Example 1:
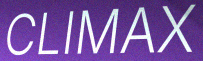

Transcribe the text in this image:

CLIMAX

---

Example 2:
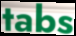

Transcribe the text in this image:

tabs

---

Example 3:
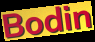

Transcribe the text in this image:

Bodin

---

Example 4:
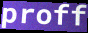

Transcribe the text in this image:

proff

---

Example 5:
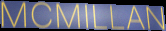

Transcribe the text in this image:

MCMILLAN